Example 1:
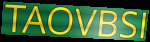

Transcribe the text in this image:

TAOVBSI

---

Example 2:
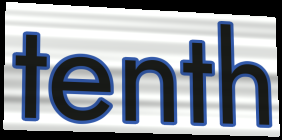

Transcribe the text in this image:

tenth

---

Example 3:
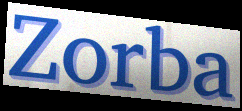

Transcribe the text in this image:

Zorba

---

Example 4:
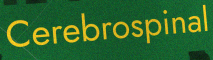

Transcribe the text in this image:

Cerebrospinal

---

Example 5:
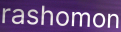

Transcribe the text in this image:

rashomon